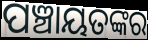
ପଞ୍ଚାୟତଙ୍କର